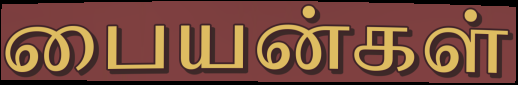
பையன்கள்